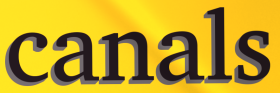
canals